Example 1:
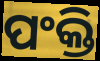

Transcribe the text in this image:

ପଂକ୍ତି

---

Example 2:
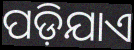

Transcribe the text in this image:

ପଡ଼ିଯାଏ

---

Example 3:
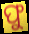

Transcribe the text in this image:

ଫୁ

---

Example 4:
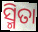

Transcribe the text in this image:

ସ୍ମିତା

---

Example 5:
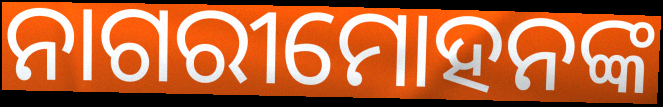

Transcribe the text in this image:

ନାଗରୀମୋହନଙ୍କ